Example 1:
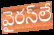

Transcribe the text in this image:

వైరస్‌లే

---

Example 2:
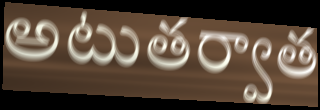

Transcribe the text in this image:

అటుతర్వాత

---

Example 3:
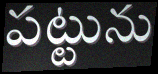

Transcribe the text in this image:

పట్టును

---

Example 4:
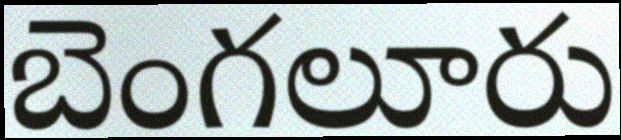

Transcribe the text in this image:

బెంగలూరు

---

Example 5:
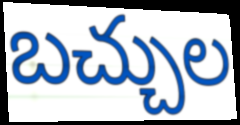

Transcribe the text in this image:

బచ్చుల